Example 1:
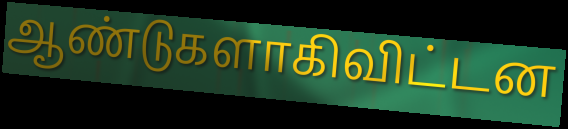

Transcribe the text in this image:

ஆண்டுகளாகிவிட்டன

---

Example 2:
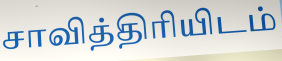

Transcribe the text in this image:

சாவித்திரியிடம்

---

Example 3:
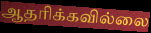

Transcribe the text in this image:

ஆதரிக்கவில்லை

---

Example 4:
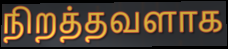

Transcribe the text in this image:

நிறத்தவளாக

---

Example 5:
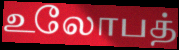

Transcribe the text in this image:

உலோபத்